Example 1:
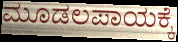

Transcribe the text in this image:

ಮೂಡಲಪಾಯಕ್ಕೆ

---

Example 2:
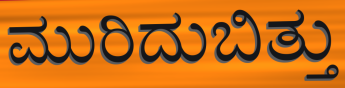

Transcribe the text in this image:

ಮುರಿದುಬಿತ್ತು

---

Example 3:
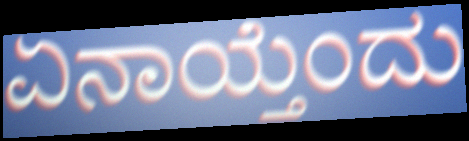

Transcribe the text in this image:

ಏನಾಯ್ತೆಂದು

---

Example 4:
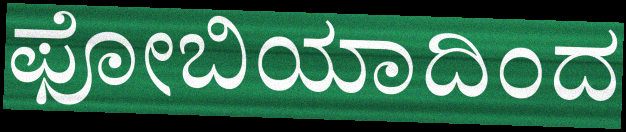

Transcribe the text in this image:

ಫೋಬಿಯಾದಿಂದ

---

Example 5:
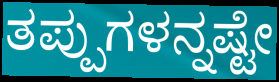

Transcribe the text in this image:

ತಪ್ಪುಗಳನ್ನಷ್ಟೇ